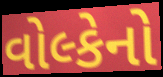
વોલ્કેનો